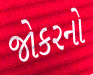
જોકરનો